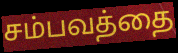
சம்பவத்தை